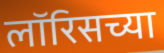
लॉरिसच्या